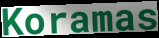
Koramas